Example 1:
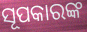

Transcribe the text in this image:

ସୂପକାରଙ୍କ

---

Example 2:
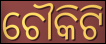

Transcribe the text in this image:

ଚୌକିଟି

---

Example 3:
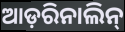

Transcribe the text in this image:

ଆଡ଼ରିନାଲିନ୍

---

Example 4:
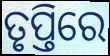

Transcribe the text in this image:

ତୃପ୍ତିରେ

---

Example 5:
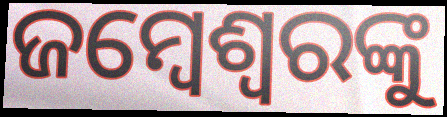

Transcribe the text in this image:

ଜମ୍ବେଶ୍ୱରଙ୍କୁ